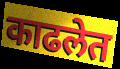
काढलेत